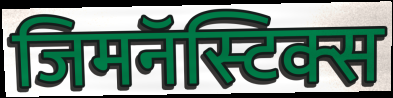
जिमनॅस्टिक्स